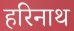
हरिनाथ